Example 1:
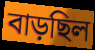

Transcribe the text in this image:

বাড়ছিল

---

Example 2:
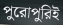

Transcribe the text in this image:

পুরোপুরিই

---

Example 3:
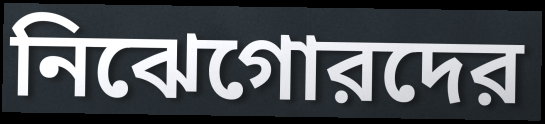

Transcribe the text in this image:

নিঝেগোরদের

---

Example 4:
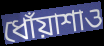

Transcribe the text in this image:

ধোঁয়াশাও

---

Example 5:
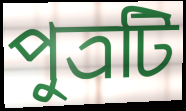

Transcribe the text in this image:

পুত্রটি